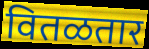
वितळतार